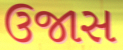
ઉજાસ